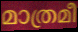
മാത്രമീ